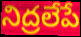
నిద్రలేపే